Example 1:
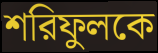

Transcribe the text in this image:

শরিফুলকে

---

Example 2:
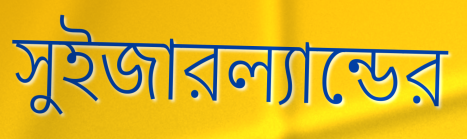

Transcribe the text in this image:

সুইজারল্যান্ডের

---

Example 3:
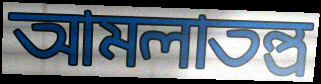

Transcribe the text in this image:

আমলাতন্ত্র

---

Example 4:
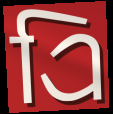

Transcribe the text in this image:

এি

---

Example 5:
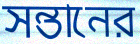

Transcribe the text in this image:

সন্তানের